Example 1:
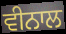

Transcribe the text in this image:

ਵੀਨਾਲ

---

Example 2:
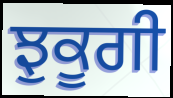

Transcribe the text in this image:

ਝੁਕੂਗੀ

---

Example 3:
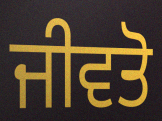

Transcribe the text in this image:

ਜੀਵਤੋ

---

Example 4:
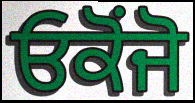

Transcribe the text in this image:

ਓਕੋਂਜੋ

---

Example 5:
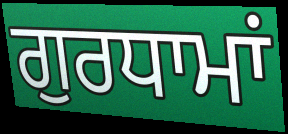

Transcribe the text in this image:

ਗੁਰਧਾਮਾਂ